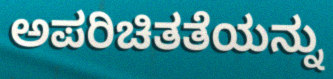
ಅಪರಿಚಿತತೆಯನ್ನು